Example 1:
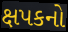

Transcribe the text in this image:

ક્ષપકનો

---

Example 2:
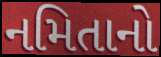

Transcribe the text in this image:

નમિતાનો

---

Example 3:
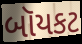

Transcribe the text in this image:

બૉયકટ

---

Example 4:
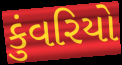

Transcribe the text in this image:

કુંવરિયો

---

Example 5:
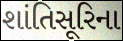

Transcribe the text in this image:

શાંતિસૂરિના